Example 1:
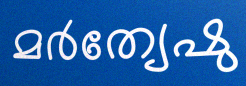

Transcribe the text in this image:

മർത്യേഷു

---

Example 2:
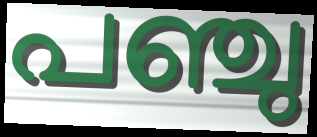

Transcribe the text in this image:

പഞ്ചു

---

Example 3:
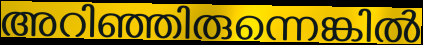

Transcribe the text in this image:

അറിഞ്ഞിരുന്നെങ്കിൽ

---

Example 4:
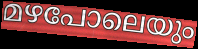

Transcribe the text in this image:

മഴപോലെയും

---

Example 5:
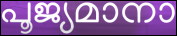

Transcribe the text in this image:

പൂജ്യമാനാ